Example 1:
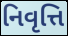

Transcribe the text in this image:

નિવૃત્તિ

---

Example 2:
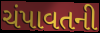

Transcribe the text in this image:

ચંપાવતની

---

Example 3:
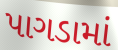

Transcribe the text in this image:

પાગડામાં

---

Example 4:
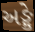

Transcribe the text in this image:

અઙ્કે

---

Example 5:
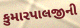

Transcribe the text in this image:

કુમારપાલજીની